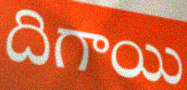
దిగాయి